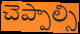
చెప్పాల్సి